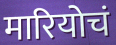
मारियोचं